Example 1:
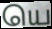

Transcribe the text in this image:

யெ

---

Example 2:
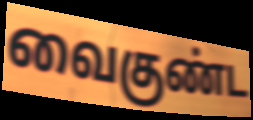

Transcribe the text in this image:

வைகுண்ட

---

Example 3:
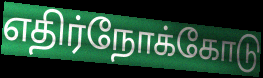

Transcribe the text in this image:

எதிர்நோக்கோடு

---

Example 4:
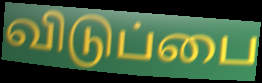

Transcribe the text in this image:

விடுப்பை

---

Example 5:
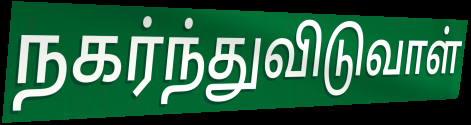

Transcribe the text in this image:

நகர்ந்துவிடுவாள்